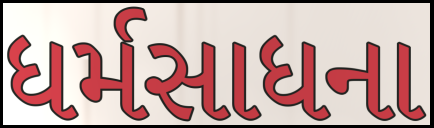
ધર્મસાધના